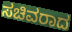
ಸಚಿವರಾದ